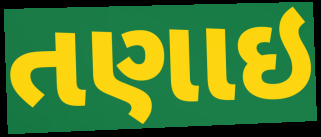
તણાઇ